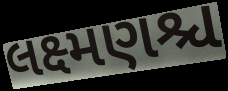
લક્ષ્મણશ્ચ